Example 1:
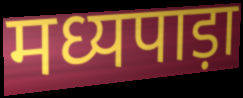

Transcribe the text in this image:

मध्यपाड़ा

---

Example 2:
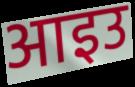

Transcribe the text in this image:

आइउ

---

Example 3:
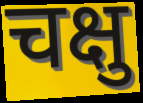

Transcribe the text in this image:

चक्षु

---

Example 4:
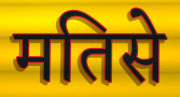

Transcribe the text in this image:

मतिसे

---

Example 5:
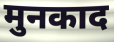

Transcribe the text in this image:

मुनकाद